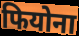
फियोना